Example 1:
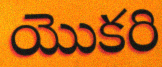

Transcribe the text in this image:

యొకరి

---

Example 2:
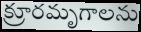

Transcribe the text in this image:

క్రూరమృగాలను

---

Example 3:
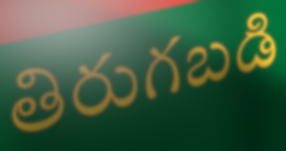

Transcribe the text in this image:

తిరుగబడి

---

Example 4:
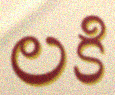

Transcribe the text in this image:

లకి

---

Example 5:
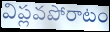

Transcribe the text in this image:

విప్లవపోరాటం